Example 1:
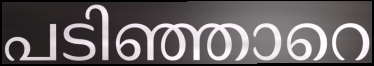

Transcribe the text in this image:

പടിഞ്ഞാറെ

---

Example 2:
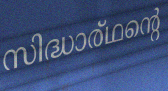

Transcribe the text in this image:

സിദ്ധാര്ഥന്റെ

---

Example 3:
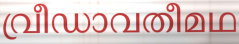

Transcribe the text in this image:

വ്രീഡാവതീമഥ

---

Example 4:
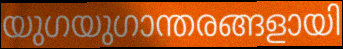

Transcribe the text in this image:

യുഗയുഗാന്തരങ്ങളായി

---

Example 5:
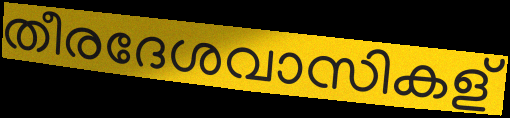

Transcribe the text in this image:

തീരദേശവാസികള്